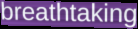
breathtaking